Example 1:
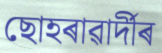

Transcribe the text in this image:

ছোহৰাৱাৰ্দীৰ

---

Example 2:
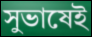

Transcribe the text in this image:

সুভাষেই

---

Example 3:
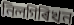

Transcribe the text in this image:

নিলগিৰিখন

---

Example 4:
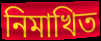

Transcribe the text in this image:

নিমাখিত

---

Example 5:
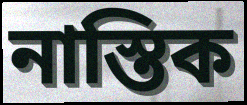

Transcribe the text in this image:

নাস্তিক